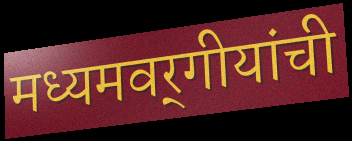
मध्यमवर्गीयांची